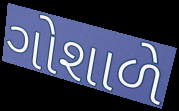
ગોશાળે